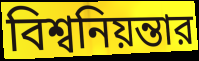
বিশ্বনিয়ন্তার